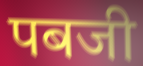
पबजी